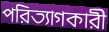
পরিত্যাগকারী